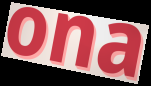
ona